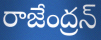
రాజేంద్రన్